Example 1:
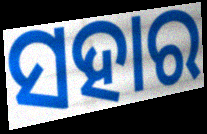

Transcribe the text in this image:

ସହାର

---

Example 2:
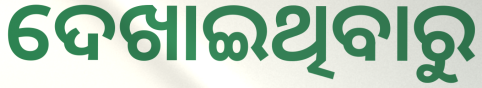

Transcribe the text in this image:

ଦେଖାଇଥିବାରୁ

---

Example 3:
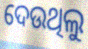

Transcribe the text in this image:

ଦେଉଥିଲୁ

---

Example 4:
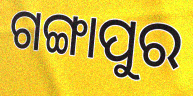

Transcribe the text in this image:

ଗଙ୍ଗାପୁର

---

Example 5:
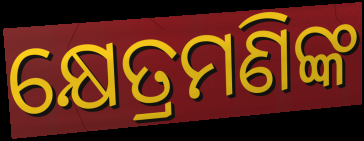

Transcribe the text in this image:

କ୍ଷେତ୍ରମଣିଙ୍କ